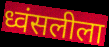
ध्वंसलीला